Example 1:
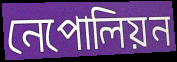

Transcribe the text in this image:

নেপোলিয়ন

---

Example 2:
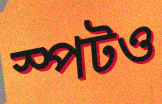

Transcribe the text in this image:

স্পটও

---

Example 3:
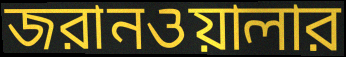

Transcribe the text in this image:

জরানওয়ালার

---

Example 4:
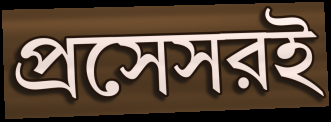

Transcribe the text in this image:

প্রসেসরই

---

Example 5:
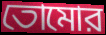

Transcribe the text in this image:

তোমোর